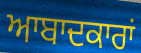
ਆਬਾਦਕਾਰਾਂ